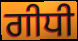
ਗੀਧੀ